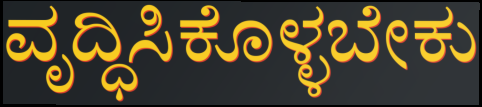
ವೃದ್ಧಿಸಿಕೊಳ್ಳಬೇಕು